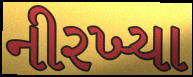
નીરખ્યા